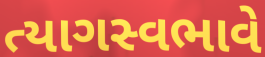
ત્યાગસ્વભાવે